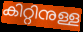
കിറ്റിനുള്ള